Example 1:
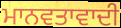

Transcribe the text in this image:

ਮਾਨਵਤਾਵਾਦੀ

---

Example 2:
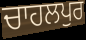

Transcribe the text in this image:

ਚਾਹਲਪੁਰ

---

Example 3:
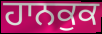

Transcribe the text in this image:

ਹਾਨਕੁਕ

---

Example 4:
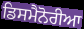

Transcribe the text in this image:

ਡਿਸਮੈਨੋਰੀਆ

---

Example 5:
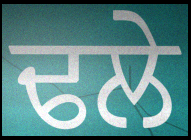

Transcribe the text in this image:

ਢਲੇ